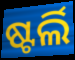
ଷ୍ଟର୍ଲି